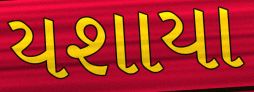
યશાયા